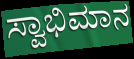
ಸ್ವಾಭಿಮಾನ